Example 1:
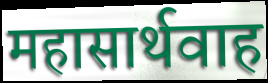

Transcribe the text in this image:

महासार्थवाह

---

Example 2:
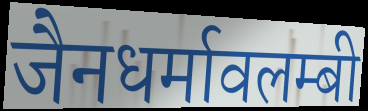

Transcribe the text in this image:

जैनधर्मावलम्बी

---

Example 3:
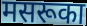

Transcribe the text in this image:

मसरूका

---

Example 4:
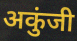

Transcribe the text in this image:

अकुंजी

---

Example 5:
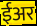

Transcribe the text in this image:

ईअर